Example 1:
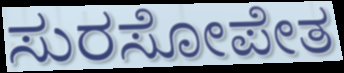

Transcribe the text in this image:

ಸುರಸೋಪೇತ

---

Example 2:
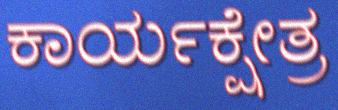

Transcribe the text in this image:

ಕಾರ್ಯಕ್ಷೇತ್ರ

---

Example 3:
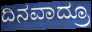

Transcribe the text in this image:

ದಿನವಾದ್ರೂ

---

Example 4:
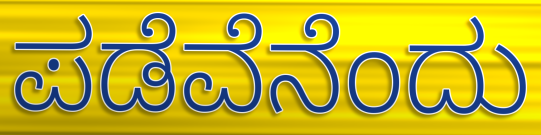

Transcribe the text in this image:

ಪಡೆವೆನೆಂದು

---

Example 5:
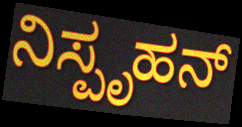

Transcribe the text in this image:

ನಿಸ್ಪೃಹನ್